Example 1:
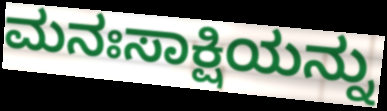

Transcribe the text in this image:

ಮನಃಸಾಕ್ಷಿಯನ್ನು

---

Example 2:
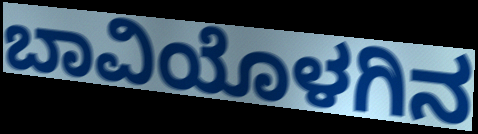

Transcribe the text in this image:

ಬಾವಿಯೊಳಗಿನ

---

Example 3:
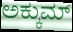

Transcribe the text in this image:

ಅಕ್ಕುಮ್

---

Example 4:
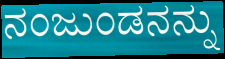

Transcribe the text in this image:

ನಂಜುಂಡನನ್ನು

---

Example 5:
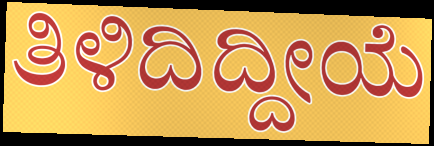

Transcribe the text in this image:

ತಿಳಿದಿದ್ದೀಯೆ